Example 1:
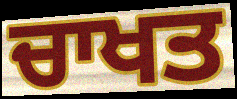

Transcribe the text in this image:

ਚਾਖਤ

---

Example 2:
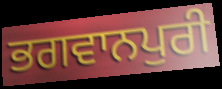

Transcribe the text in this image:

ਭਗਵਾਨਪੁਰੀ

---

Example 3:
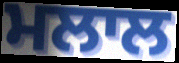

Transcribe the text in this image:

ਮਲਾਲ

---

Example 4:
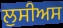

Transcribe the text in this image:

ਲੁਸੀਅਸ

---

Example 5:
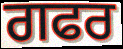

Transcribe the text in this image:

ਗਫਰ